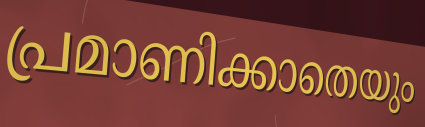
പ്രമാണിക്കാതെയും